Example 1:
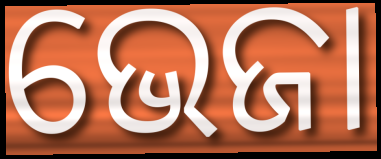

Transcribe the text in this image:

ଭେଜା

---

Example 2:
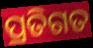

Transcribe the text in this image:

ପ୍ରତିଗତ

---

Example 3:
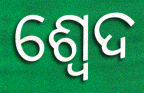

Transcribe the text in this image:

ଶ୍ଵେଦ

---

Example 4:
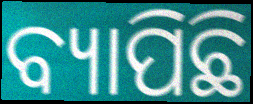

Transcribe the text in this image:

ବ୍ୟାପିଛି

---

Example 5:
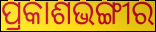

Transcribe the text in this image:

ପ୍ରକାଶଭଙ୍ଗୀର